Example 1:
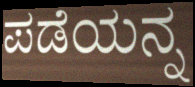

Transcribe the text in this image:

ಪಡೆಯನ್ನ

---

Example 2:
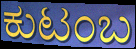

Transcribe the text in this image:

ಕುಟಂಬ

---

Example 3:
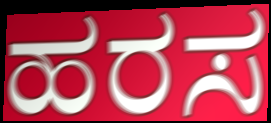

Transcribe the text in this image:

ಹರಸ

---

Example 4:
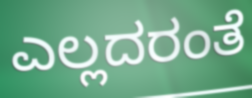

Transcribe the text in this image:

ಎಲ್ಲದರಂತೆ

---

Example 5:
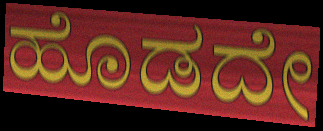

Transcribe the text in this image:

ಹೊಡದೇ